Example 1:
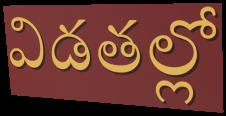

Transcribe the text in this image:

విడతల్లో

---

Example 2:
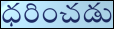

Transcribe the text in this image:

ధరించడు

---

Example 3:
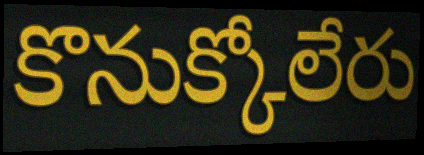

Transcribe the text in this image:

కొనుక్కోలేరు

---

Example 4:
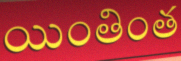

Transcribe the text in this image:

యింతింత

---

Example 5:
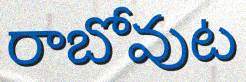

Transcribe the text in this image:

రాబోవుట